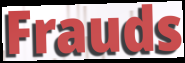
Frauds